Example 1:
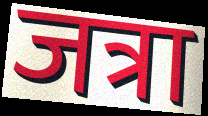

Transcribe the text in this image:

जत्रा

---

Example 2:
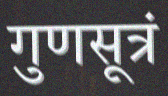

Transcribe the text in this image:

गुणसूत्रं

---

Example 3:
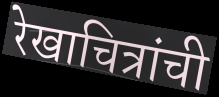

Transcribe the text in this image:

रेखाचित्रांची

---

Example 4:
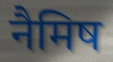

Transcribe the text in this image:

नैमिष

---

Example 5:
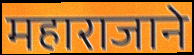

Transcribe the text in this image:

महाराजाने